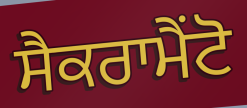
ਸੈਕਰਾਮੈਂਟੋ